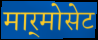
मार्मोसेट